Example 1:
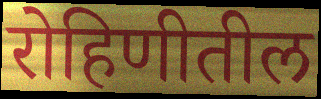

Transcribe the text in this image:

रोहिणीतील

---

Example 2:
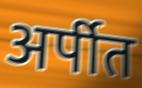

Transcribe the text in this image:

अर्पीत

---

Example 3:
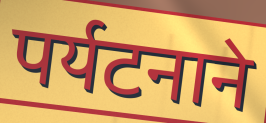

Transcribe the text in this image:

पर्यटनाने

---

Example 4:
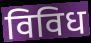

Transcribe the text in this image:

विविध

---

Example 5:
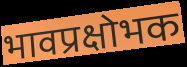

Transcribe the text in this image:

भावप्रक्षोभक